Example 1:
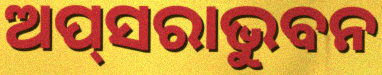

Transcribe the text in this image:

ଅପ୍‍ସରାଭୁବନ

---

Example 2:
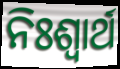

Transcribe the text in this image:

ନିଃଶ୍ୱାର୍ଥ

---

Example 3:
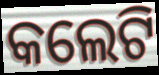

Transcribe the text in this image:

କଲେଟି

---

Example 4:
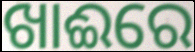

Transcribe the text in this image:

ଖାଈରେ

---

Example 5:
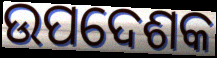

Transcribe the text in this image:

ଉପଦେଶକ